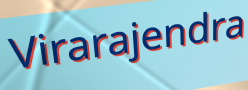
Virarajendra